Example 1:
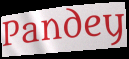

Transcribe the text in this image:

Pandey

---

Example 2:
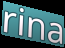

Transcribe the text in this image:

rina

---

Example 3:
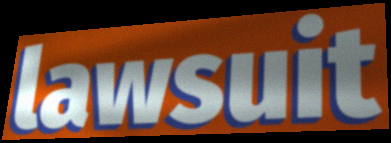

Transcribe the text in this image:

lawsuit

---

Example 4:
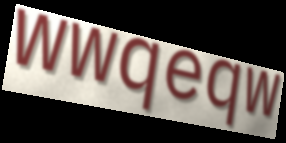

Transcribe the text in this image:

wwqeqw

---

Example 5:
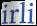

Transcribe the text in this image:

irli